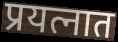
प्रयत्नात